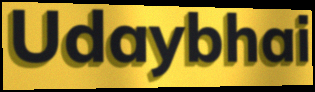
Udaybhai